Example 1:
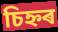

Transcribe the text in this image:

চিহ্নৰ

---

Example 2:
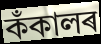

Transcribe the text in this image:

কঁকালৰ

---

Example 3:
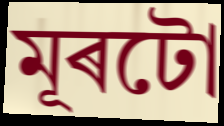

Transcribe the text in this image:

মূৰটো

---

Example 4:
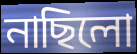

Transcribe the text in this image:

নাছিলো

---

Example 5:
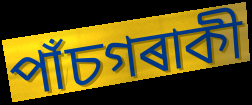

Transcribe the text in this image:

পাঁচগৰাকী